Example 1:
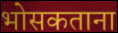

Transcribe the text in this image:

भोसकताना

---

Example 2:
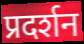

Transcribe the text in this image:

प्रदर्शन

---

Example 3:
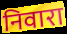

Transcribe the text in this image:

निवारा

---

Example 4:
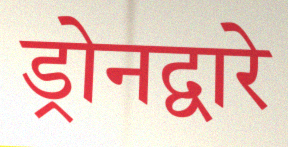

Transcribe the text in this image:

ड्रोनद्वारे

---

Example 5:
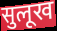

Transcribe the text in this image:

सुलूख